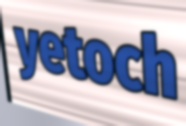
yetoch